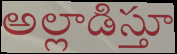
అల్లాడిస్తూ